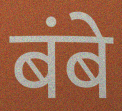
बंबे